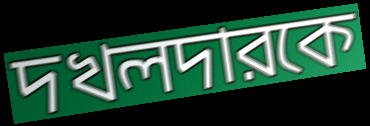
দখলদারকে